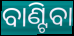
ବାଣ୍ଟିବା